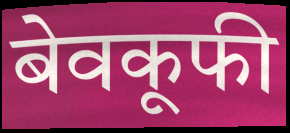
बेवकूफी